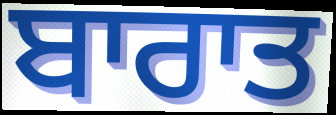
ਬਾਰਾਤ